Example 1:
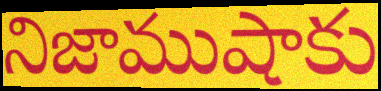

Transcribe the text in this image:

నిజాముషాకు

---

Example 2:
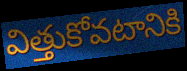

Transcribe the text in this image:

విత్తుకోవటానికి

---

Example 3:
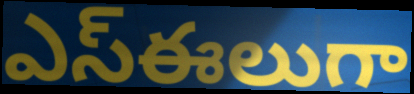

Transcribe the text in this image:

ఎస్ఈలుగా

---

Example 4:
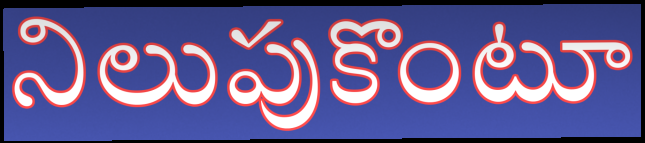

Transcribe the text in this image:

నిలుపుకొంటూ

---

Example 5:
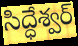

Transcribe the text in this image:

సిద్ధేశ్వర్